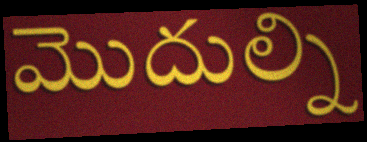
మొదుల్ని